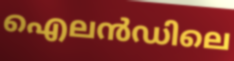
ഐലൻഡിലെ